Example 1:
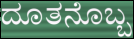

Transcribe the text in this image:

ದೂತನೊಬ್ಬ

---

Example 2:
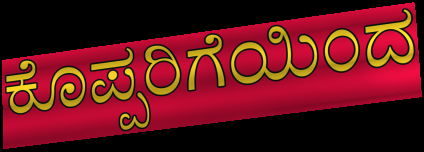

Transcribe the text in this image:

ಕೊಪ್ಪರಿಗೆಯಿಂದ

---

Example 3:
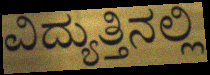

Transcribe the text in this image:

ವಿದ್ಯುತ್ತಿನಲ್ಲಿ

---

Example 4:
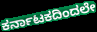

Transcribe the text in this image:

ಕರ್ನಾಟಕದಿಂದಲೇ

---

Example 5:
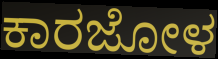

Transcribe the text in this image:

ಕಾರಜೋಳ